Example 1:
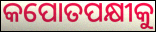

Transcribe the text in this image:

କପୋତପକ୍ଷୀକୁ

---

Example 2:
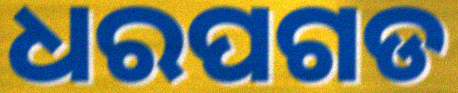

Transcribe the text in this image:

ଧରପଗଡ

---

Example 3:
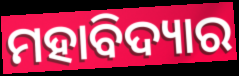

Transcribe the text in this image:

ମହାବିଦ୍ୟାର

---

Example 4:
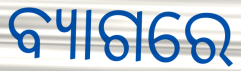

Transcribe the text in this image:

ବ୍ୟାଗରେ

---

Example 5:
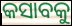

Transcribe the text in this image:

କସାବକୁ